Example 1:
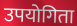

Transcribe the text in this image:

उपयोगिता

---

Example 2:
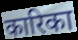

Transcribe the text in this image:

कारिका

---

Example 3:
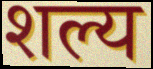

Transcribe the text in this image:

शल्‍य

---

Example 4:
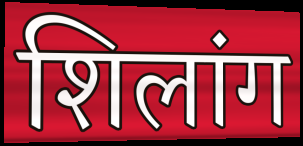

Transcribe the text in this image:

शिलांग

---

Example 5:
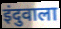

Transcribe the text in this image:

इंदुवाला